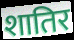
शातिर